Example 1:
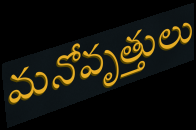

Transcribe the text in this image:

మనోవృత్తులు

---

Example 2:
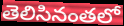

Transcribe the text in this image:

తెలిసినంతలో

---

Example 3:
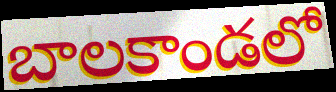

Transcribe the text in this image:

బాలకాండలో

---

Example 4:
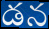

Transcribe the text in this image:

డన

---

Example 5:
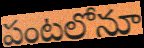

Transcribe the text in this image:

పంటలోనూ